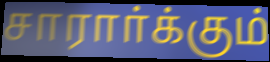
சாரார்க்கும்